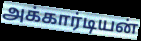
அக்கார்டியன்